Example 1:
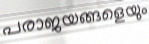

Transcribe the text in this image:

പരാജയങ്ങളെയും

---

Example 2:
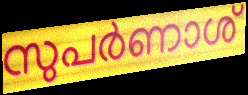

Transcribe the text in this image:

സുപർണാശ്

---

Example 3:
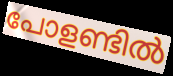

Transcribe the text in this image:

പോളണ്ടിൽ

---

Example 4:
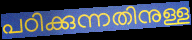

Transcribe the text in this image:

പഠിക്കുന്നതിനുള്ള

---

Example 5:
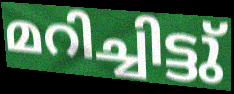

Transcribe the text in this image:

മറിച്ചിട്ടു്